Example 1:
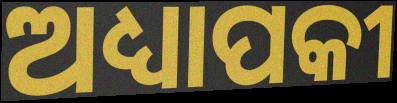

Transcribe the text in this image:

ଅଧ୍ୟାପକୀ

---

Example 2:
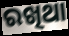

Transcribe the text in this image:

ରଖିଥା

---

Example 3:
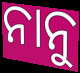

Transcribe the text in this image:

ନାନୁ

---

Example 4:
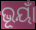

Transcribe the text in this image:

ଭୂୟାଁ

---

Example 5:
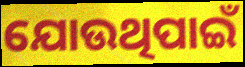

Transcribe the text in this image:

ଯୋଉଥିପାଇଁ